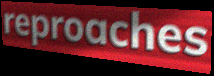
reproaches